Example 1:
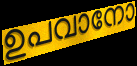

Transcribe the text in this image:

ഉപവാനോ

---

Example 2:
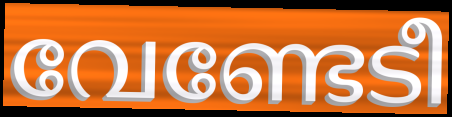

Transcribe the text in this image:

വേണ്ടേടീ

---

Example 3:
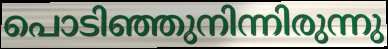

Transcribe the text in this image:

പൊടിഞ്ഞുനിന്നിരുന്നു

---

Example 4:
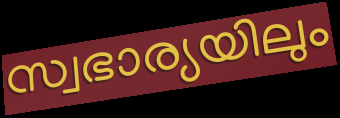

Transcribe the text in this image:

സ്വഭാര്യയിലും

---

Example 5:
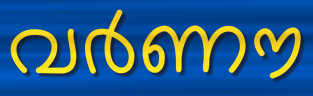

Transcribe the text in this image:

വർണൗ